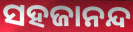
ସହଜାନନ୍ଦ